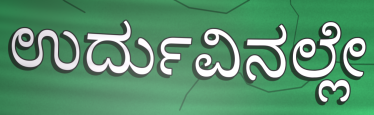
ಉರ್ದುವಿನಲ್ಲೇ